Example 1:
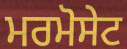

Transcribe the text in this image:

ਮਰਮੋਸੇਟ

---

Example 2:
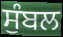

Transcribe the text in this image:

ਸੁੰਬਲ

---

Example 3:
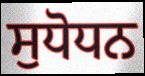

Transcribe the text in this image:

ਸੁਧੋਧਨ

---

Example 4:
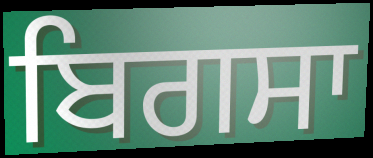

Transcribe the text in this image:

ਬਿਗਸਾ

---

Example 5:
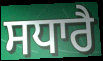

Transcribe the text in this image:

ਸਧਾਰੈ